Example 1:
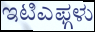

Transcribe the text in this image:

ಇಟಿಎಫ್ಗಳು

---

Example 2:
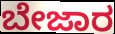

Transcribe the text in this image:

ಬೇಜಾರ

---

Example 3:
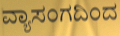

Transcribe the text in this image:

ವ್ಯಾಸಂಗದಿಂದ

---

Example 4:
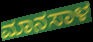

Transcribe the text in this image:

ಮಾನಸಾಳ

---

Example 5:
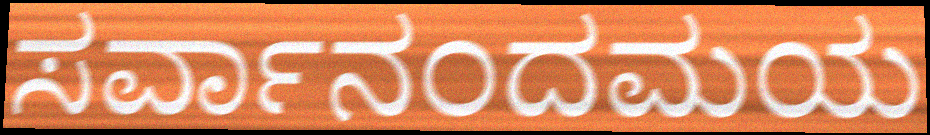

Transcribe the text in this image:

ಸರ್ವಾನಂದಮಯ